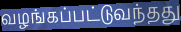
வழங்கப்பட்டுவந்தது